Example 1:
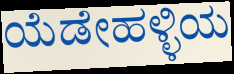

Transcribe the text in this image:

ಯೆಡೇಹಳ್ಳಿಯ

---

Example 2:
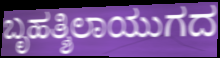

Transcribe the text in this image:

ಬೃಹತ್ಶಿಲಾಯುಗದ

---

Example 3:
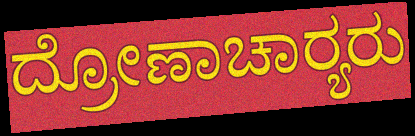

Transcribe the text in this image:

ದ್ರೋಣಾಚಾರ‍್ಯರು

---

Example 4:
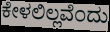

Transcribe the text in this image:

ಕೇಳಲಿಲ್ಲವೆಂದು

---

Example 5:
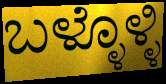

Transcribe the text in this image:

ಬಳ್ಳೊಳ್ಳಿ